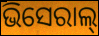
ଭିସେରାଲ୍